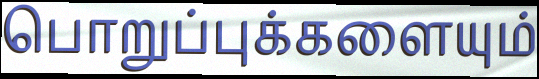
பொறுப்புக்களையும்